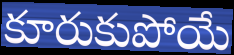
కూరుకుపోయే